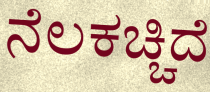
ನೆಲಕಚ್ಚಿದೆ